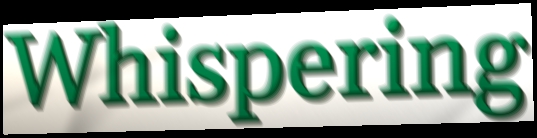
Whispering